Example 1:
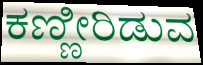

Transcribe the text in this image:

ಕಣ್ಣೀರಿಡುವ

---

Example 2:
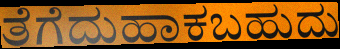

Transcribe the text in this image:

ತೆಗೆದುಹಾಕಬಹುದು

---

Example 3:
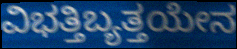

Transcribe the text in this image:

ವಿಭತ್ತಿಬ್ಯತ್ತಯೇನ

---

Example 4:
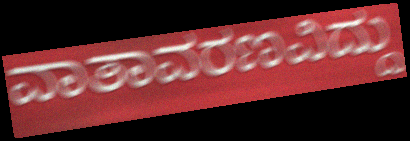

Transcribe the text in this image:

ವಾತಾವರಣವಿದ್ದು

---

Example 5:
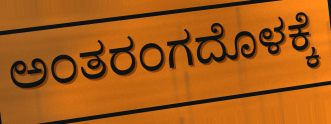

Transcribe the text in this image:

ಅಂತರಂಗದೊಳಕ್ಕೆ